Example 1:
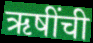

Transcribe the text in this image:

ऋषींची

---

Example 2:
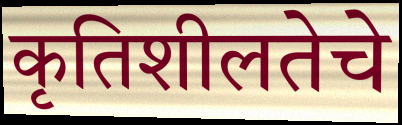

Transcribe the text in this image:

कृतिशीलतेचे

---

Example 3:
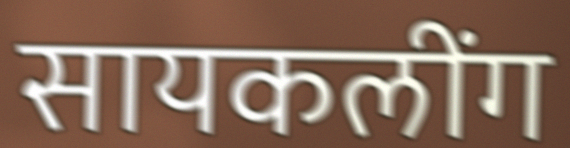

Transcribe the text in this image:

सायकलींग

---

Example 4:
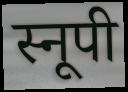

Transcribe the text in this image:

स्नूपी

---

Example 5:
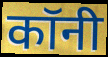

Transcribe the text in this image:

कॉनी